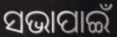
ସଭାପାଇଁ